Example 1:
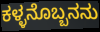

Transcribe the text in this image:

ಕಳ್ಳನೊಬ್ಬನನು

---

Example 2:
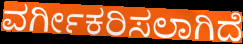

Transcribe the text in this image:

ವರ್ಗೀಕರಿಸಲಾಗಿದೆ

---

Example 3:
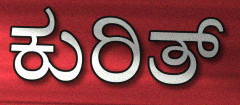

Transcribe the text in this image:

ಕುರಿತ್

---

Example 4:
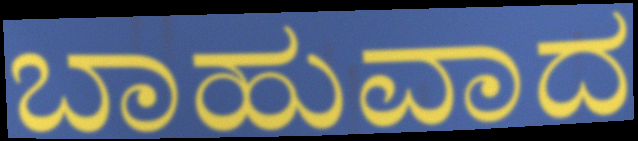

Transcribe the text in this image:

ಬಾಹುವಾದ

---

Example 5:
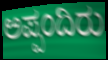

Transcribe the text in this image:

ಅಪ್ಪಂದಿರು